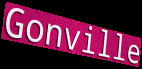
Gonville